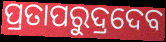
ପ୍ରତାପରୁଦ୍ରଦେବ